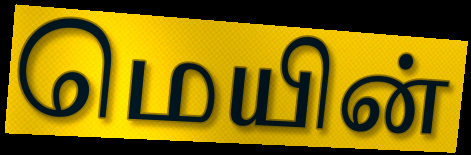
மெயின்